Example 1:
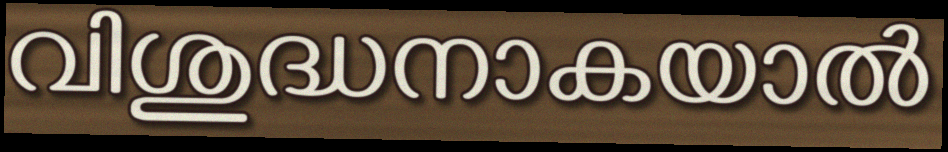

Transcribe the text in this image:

വിശുദ്ധനാകയാൽ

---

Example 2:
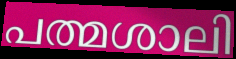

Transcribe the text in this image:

പത്മശാലി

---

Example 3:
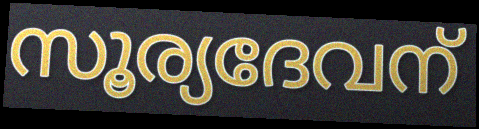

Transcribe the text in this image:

സൂര്യദേവന്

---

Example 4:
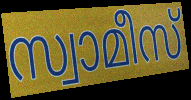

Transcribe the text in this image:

സ്വാമീസ്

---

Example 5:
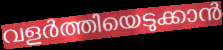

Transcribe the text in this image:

വളർത്തിയെടുക്കാൻ